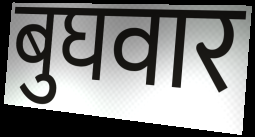
बुघवार